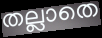
തല്ലാതെ